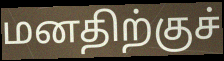
மனதிற்குச்